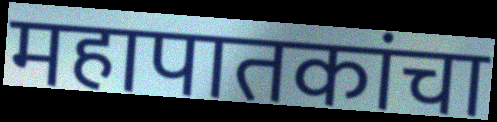
महापातकांचा